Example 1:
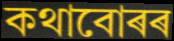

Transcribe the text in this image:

কথাবোৰৰ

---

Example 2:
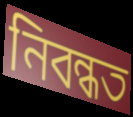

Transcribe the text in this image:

নিবন্ধত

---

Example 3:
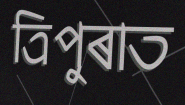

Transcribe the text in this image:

ত্ৰিপুৰাত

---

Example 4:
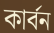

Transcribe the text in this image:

কাৰ্বন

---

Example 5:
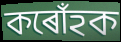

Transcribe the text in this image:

কৰোঁহক